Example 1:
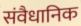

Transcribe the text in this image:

संवैधानिक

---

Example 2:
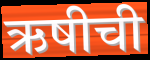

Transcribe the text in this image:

ऋषीची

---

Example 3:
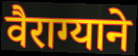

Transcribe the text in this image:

वैराग्याने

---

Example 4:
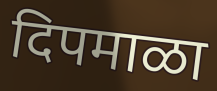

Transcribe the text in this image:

दिपमाळा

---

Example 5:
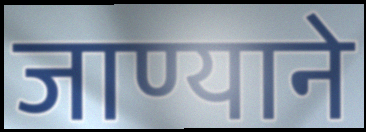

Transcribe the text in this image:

जाण्याने